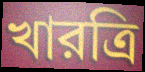
খারত্রি